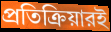
প্রতিক্রিয়ারই